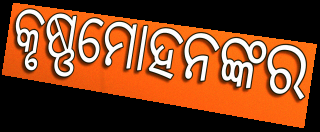
କୃଷ୍ଣମୋହନଙ୍କର